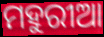
ମହୁରୀଆ